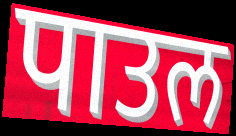
पाउल